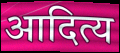
आदित्य